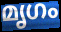
മൃഗം